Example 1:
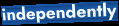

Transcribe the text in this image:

independently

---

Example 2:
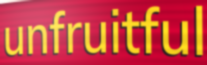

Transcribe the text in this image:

unfruitful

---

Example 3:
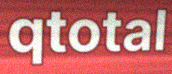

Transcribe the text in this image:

qtotal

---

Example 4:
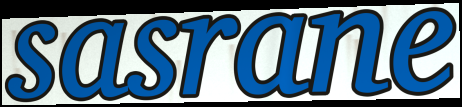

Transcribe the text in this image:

sasrane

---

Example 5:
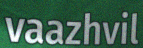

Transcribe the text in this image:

vaazhvil